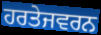
ਹਰਤੇਜਵਰਨ